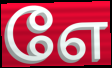
எே